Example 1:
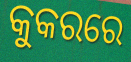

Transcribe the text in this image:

କୁକରରେ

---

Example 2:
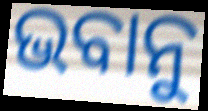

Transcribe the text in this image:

ଭବାନୁ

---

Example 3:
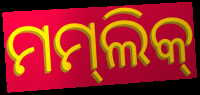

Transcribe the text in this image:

ମମ୍‌ଲିକ୍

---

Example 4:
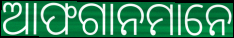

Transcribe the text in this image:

ଆଫଗାନମାନେ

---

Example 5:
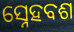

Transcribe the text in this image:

ସ୍ନେହବଶ